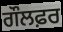
ਗੌਲਫ਼ਰ